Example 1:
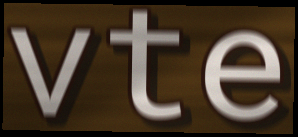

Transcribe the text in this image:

vte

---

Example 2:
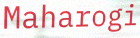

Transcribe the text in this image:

Maharogi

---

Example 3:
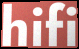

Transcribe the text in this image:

hifi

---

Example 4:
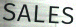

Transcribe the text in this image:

SALES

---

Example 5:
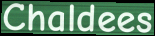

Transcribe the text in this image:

Chaldees